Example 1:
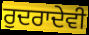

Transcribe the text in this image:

ਰੁਦਰਾਦੇਵੀ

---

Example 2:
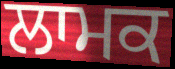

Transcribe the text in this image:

ਲਾਮਕ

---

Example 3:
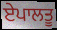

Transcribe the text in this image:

ਏਪਾਲਤੂ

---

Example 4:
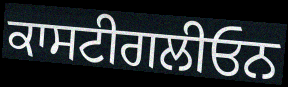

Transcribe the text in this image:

ਕਾਸਟੀਗਲੀਓਨ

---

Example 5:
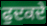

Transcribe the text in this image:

ਫੁਦਕਦੇ